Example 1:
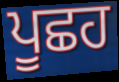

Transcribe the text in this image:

ਪੂਛਹ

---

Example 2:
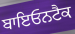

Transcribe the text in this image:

ਬਾਇਓਨਟੈਕ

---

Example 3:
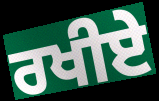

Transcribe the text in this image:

ਰਖੀਏ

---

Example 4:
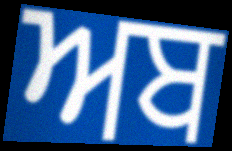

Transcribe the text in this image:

ਅਬ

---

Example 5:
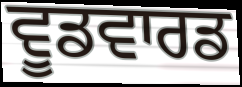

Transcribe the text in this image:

ਵੂਡਵਾਰਡ